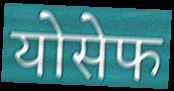
योसेफ